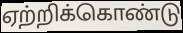
ஏற்றிக்கொண்டு